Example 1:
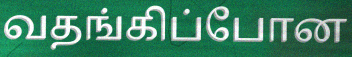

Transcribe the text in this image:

வதங்கிப்போன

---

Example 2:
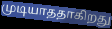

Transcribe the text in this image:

முடியாததாகிறது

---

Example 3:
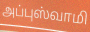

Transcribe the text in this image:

அப்புஸ்வாமி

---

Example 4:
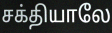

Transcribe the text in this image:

சக்தியாலே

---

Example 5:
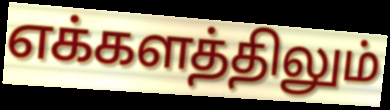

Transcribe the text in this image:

எக்களத்திலும்